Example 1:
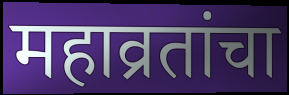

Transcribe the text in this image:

महाव्रतांचा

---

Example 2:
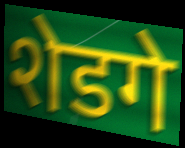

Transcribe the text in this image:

शेडगे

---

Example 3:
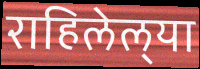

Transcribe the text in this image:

राहिलेल्या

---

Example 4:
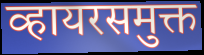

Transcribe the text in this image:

व्हायरसमुक्त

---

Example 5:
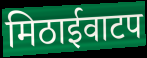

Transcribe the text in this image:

मिठाईवाटप